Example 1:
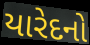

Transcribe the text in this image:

યારેદનો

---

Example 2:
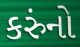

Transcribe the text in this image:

કરુંનો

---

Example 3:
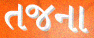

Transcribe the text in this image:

તજના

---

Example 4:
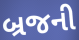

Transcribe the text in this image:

બ્રજની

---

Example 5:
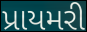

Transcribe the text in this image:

પ્રાયમરી